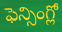
ఫెన్సింగ్లో